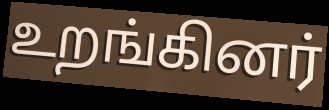
உறங்கினர்